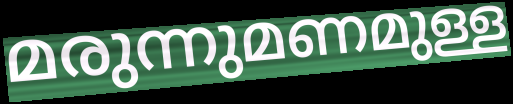
മരുന്നുമണമുള്ള